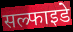
सल्फाइडे